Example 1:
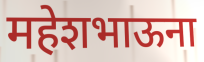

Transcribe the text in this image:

महेशभाऊना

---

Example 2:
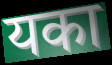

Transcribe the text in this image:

यका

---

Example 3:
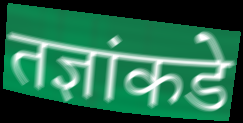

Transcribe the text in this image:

तज्ञांकडे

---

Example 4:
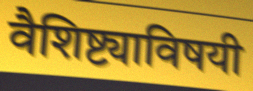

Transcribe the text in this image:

वैशिष्ट्याविषयी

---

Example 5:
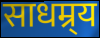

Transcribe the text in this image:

साधम्र्य